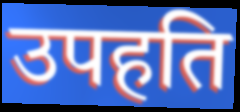
उपहति